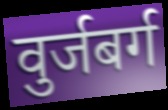
वुर्जबर्ग